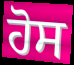
ਹੋਸ